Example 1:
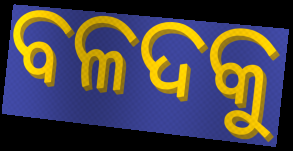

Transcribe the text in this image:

ବଳଦକୁ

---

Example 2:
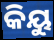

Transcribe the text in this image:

କିୟୁ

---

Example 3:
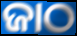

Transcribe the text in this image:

ଜାଠ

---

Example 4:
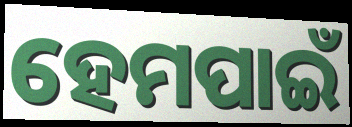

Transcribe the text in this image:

ହେମପାଇଁ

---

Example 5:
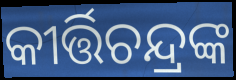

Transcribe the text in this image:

କୀର୍ତ୍ତିଚନ୍ଦ୍ରଙ୍କ